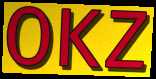
OKZ